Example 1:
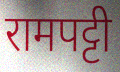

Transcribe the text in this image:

रामपट्टी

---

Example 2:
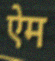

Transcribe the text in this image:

ऐम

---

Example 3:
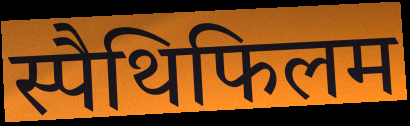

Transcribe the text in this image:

स्पैथिफिलम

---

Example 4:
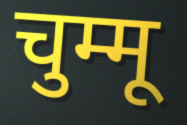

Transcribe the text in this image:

चुम्मू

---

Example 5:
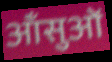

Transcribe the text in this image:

आँसुओं